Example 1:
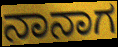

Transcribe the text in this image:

ನಾನಾಗ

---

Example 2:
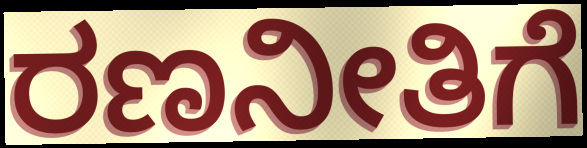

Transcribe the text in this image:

ರಣನೀತಿಗೆ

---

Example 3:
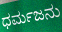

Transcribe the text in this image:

ಧರ್ಮಜನು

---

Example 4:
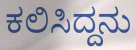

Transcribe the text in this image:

ಕಲಿಸಿದ್ದನು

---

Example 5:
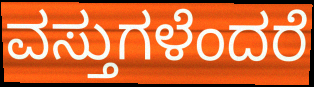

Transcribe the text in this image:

ವಸ್ತುಗಳೆಂದರೆ